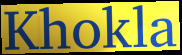
Khokla